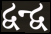
દ્વન્દ્વ